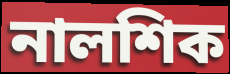
নালশিক